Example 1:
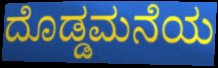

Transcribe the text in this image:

ದೊಡ್ಡಮನೆಯ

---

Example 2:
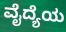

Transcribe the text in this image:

ವೈದ್ಯೆಯ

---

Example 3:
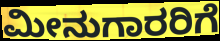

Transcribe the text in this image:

ಮೀನುಗಾರರಿಗೆ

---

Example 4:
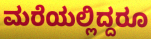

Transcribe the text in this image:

ಮರೆಯಲ್ಲಿದ್ದರೂ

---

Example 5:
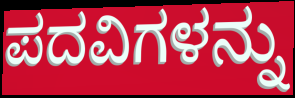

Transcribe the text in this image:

ಪದವಿಗಳನ್ನು